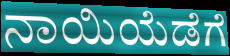
ನಾಯಿಯೆಡೆಗೆ